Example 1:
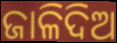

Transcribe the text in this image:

ଜାଳିଦିଅ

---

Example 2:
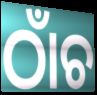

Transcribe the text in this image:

ଠାଁଚ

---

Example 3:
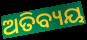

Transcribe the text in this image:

ଅତିବ୍ୟୟ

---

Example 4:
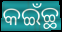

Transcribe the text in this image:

କଇଁଚ୍ଛ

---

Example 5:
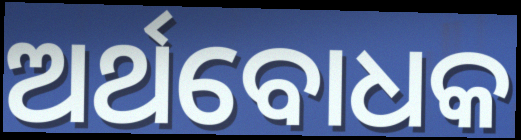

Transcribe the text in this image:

ଅର୍ଥବୋଧକ